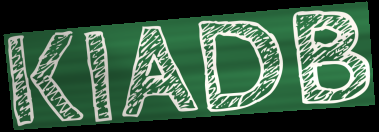
KIADB